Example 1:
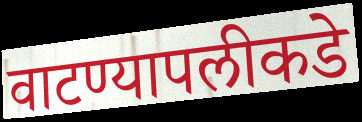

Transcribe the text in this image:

वाटण्यापलीकडे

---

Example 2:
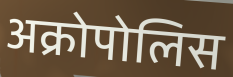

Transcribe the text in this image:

अक्रोपोलिस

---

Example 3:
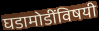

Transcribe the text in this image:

घडामोडींविषयी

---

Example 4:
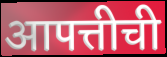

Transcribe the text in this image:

आपत्तीची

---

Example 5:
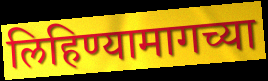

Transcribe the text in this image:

लिहिण्यामागच्या